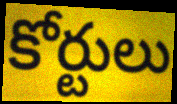
కోర్టులు